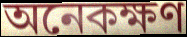
অনেকক্ষণ